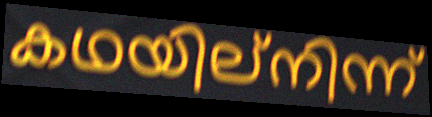
കഥയില്നിന്ന്